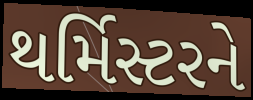
થર્મિસ્ટરને